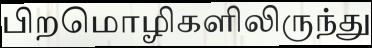
பிறமொழிகளிலிருந்து